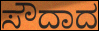
ಸೌದಾದ